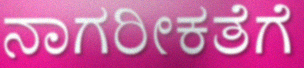
ನಾಗರೀಕತೆಗೆ